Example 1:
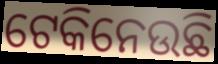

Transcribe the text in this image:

ଟେକିନେଉଛି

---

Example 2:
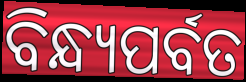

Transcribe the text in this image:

ବିନ୍ଧ୍ୟପର୍ବତ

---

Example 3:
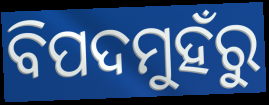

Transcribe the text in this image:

ବିପଦମୁହଁରୁ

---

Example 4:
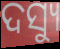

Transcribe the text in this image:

ଦସ୍ୟୁ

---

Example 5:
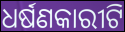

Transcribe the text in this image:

ଧର୍ଷଣକାରୀଟି